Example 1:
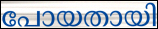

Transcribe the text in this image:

പോയതായി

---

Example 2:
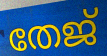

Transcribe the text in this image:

തേജ്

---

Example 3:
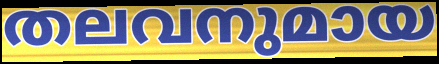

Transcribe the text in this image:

തലവനുമായ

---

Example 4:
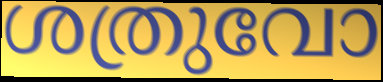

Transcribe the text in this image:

ശത്രുവോ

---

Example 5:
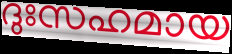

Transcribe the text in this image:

ദുഃസഹമായ